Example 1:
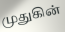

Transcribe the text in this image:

முதுகின்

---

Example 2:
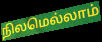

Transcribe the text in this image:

நிலமெல்லாம்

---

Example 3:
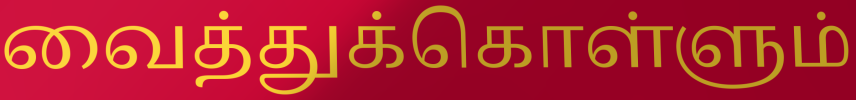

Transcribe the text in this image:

வைத்துக்கொள்ளும்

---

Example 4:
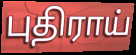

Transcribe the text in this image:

புதிராய்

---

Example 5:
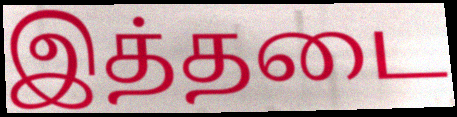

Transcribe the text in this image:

இத்தடை